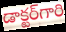
డాక్టర్‌గారి